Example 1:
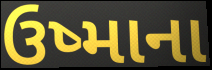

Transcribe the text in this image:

ઉષ્માના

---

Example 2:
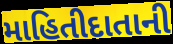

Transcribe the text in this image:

માહિતીદાતાની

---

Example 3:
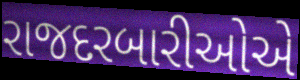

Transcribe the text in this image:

રાજદરબારીઓએ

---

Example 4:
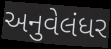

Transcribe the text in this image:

અનુવેલંધર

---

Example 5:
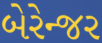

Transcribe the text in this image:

બેરેન્જર